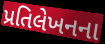
પ્રતિલેખનના